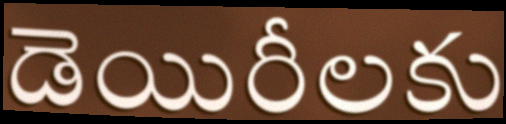
డెయిరీలకు